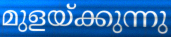
മുളയ്ക്കുന്നു